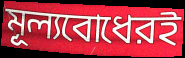
মূল্যবোধেরই